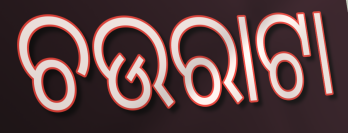
ଚଉରାଟା